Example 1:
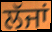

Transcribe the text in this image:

ਲੱਜਾਂ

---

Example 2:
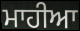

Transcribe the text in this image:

ਮਾਹੀਆ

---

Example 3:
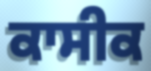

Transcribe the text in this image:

ਕਾਸੀਕ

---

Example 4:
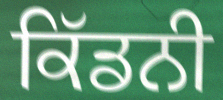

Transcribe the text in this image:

ਕਿੱਡਨੀ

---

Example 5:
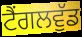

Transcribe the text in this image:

ਟੈਂਗਲਵੁੱਡ